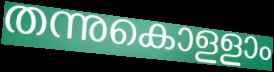
തന്നുകൊളളാം